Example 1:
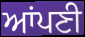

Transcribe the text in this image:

ਆਂਪਣੀ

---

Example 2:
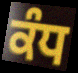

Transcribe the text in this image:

ਕੰਧ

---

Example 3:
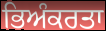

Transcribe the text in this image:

ਭਿਅੰਕਰਤਾ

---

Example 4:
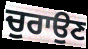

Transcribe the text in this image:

ਚੁਰਾਉਣ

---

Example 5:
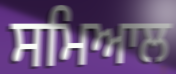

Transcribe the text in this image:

ਸਮਿਆਲ